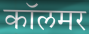
कॉलमर